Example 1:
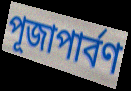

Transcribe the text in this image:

পূজাপার্বণ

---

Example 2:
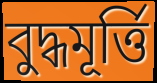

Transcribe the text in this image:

বুদ্ধমূর্ত্তি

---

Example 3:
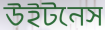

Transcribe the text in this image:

উইটনেস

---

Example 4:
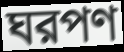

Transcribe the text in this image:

ঘরপণ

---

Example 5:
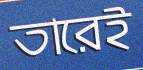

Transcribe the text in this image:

তারেই